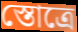
স্তোত্রে